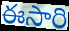
ఈసారి